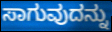
ಸಾಗುವುದನ್ನು